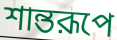
শান্তরূপে